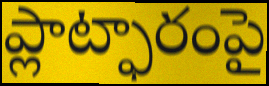
ప్లాట్ఫారంపై